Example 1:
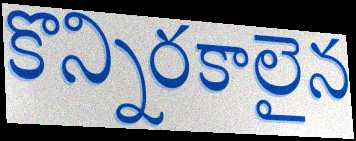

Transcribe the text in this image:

కొన్నిరకాలైన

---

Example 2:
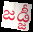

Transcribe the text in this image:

జడ్జీ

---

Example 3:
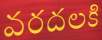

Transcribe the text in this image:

వరదలకి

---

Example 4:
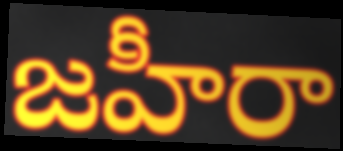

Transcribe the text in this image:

జహీరా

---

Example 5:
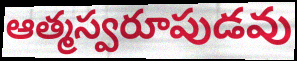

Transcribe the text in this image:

ఆత్మస్వరూపుడవు